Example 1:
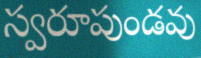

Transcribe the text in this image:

స్వరూపుండవు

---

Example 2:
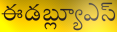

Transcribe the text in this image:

ఈడబ్ల్యూఎస్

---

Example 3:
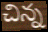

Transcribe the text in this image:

చిన్న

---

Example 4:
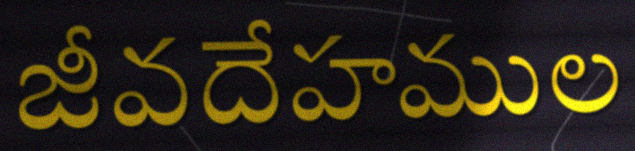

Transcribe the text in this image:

జీవదేహముల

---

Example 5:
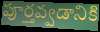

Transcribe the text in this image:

పూర్తవ్వడానికి